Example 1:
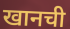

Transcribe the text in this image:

खानची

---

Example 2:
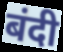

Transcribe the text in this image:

बंदी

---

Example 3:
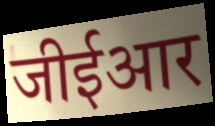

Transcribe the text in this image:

जीईआर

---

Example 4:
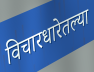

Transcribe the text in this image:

विचारधारेतल्या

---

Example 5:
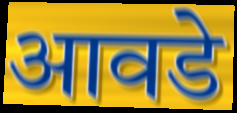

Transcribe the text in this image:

आवडे